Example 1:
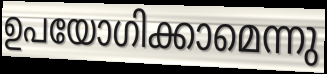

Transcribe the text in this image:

ഉപയോഗിക്കാമെന്നു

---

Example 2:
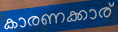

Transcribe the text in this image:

കാരണക്കാര്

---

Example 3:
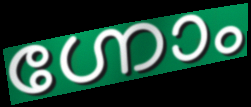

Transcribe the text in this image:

ഗ്നോം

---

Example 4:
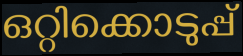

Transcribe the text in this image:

ഒറ്റിക്കൊടുപ്പ്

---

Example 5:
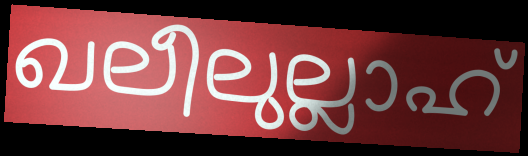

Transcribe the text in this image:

ഖലീലുല്ലാഹ്